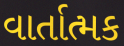
વાર્તાત્મક